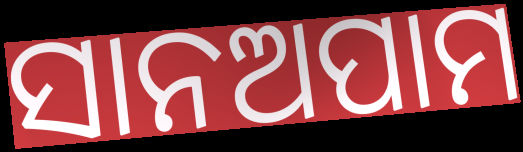
ସାନଅପାମ